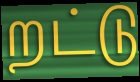
றட்டு